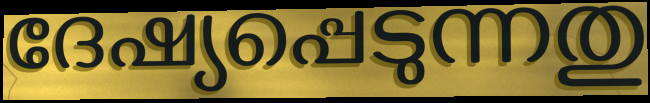
ദേഷ്യപ്പെടുന്നതു